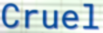
Cruel